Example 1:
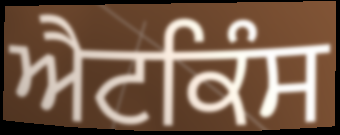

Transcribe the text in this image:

ਐਟਕਿੰਸ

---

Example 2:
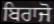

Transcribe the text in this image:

ਬਿਰਾਜੋ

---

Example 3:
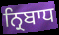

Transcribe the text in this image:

ਨ੍ਰਿਬਾਧ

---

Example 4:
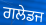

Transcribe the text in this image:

ਗਲੇਡਜ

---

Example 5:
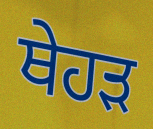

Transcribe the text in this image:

ਥੇਹੜ